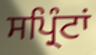
ਸਪ੍ਰਿੰਟਾਂ